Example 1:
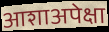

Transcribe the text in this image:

आशाअपेक्षा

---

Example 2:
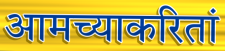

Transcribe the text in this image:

आमच्याकरितां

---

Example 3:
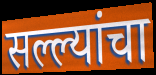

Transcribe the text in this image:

सल्ल्यांचा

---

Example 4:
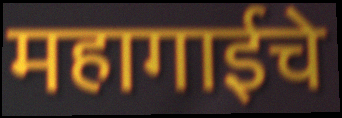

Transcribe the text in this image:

महागाईचे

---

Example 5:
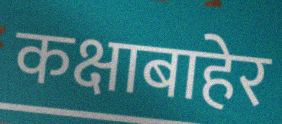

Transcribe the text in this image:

कक्षाबाहेर